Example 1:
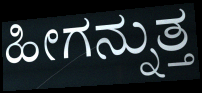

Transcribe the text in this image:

ಹೀಗನ್ನುತ್ತ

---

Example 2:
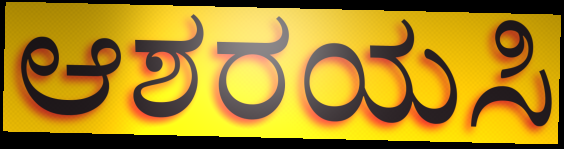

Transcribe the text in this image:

ಆಶರಯಸಿ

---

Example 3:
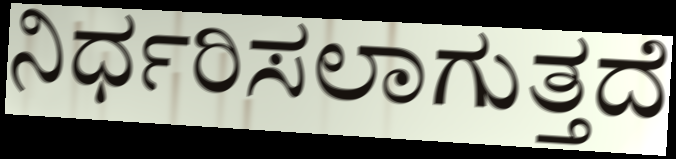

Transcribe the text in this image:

ನಿರ್ಧರಿಸಲಾಗುತ್ತದೆ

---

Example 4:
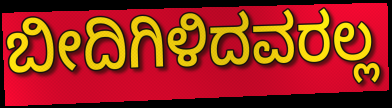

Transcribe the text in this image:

ಬೀದಿಗಿಳಿದವರಲ್ಲ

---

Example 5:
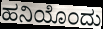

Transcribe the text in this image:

ಹನಿಯೊಂದು